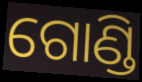
ଗୋଣ୍ଡି